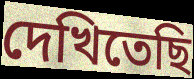
দেখিতেছি